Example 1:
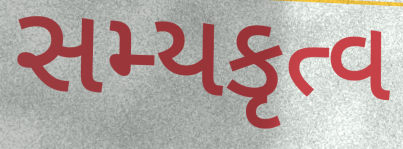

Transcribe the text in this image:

સમ્યકૃત્વ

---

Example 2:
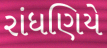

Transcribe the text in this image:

રાંધણિયે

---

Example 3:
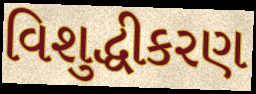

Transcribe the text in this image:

વિશુદ્ધીકરણ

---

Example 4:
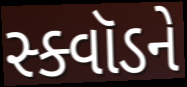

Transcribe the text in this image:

સ્ક્વૉડને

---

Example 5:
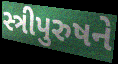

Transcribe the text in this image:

સ્ત્રીપુરુષને